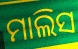
ମାଲିସ